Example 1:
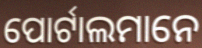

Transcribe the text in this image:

ପୋର୍ଟାଲମାନେ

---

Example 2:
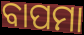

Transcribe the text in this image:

ବାପମା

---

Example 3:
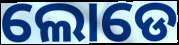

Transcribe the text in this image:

ଲୋଡେ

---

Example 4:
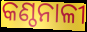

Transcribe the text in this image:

କଣ୍ଠନାଳୀ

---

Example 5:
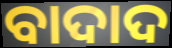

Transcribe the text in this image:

ବାଦାଦ